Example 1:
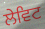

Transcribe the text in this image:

ਲੇਵਿਟ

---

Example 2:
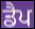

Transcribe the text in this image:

ਡੈਪ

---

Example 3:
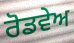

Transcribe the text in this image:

ਰੋਡਵੇਅ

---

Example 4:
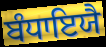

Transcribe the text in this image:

ਬੰਧਾਇਯੈ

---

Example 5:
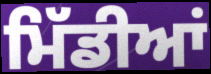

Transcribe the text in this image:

ਮਿੱਡੀਆਂ